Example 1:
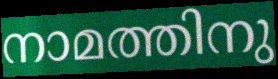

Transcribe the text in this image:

നാമത്തിനു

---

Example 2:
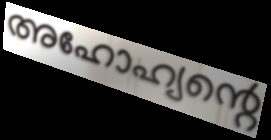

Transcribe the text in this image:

അഹോഹ്യന്റെ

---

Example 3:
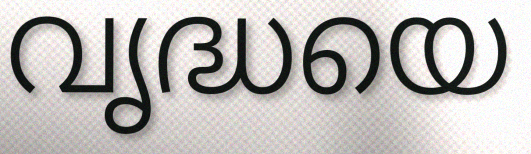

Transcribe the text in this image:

വൃദ്ധയെ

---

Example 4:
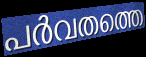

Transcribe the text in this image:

പർവതത്തെ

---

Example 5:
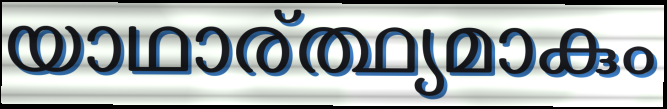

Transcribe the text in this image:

യാഥാര്ത്ഥ്യമാകും